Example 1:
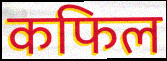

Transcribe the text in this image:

कफिल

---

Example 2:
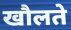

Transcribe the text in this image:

खौलते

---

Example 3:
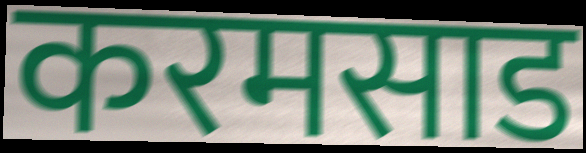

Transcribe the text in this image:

करमसाड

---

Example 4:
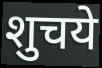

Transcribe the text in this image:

शुचये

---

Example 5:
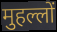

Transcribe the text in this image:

मुहल्लों